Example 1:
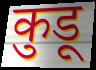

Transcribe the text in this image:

कुडू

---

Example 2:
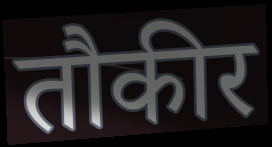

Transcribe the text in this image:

तौकीर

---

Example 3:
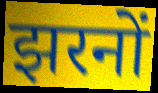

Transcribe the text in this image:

झरनों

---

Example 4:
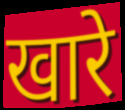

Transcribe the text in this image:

खारे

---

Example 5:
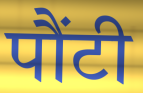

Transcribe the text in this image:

पौंटी